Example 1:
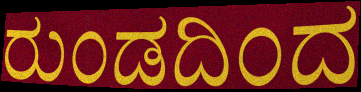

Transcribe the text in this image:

ರುಂಡದಿಂದ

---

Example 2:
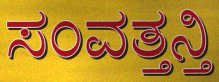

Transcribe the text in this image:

ಸಂವತ್ತನ್ತಿ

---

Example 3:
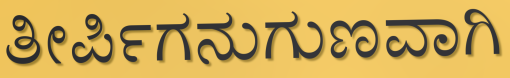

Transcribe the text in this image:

ತೀರ್ಪಿಗನುಗುಣವಾಗಿ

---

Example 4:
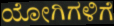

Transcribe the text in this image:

ಯೋಗಿಗಳಿಗೆ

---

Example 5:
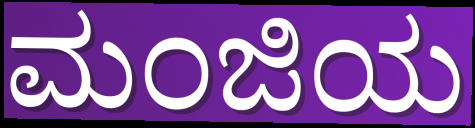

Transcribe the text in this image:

ಮಂಜಿಯ